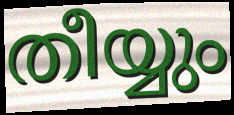
തീയ്യും